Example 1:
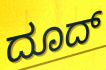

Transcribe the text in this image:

ದೂದ್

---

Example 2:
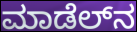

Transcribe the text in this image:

ಮಾಡೆಲ್‌ನ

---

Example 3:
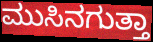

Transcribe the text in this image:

ಮುಸಿನಗುತ್ತಾ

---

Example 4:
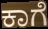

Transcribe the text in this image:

ಕಾಗೆ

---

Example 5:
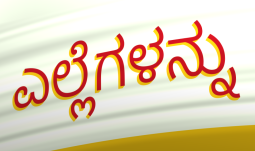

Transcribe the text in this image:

ಎಲ್ಲೆಗಳನ್ನು